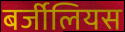
बर्जीलियस